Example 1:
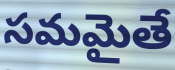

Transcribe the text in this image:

సమమైతే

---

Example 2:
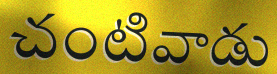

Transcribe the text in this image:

చంటివాడు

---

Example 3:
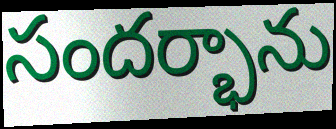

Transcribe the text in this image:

సందర్భాను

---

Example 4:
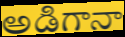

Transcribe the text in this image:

అడిగానా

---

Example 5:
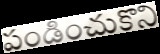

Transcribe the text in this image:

పండించుకొని